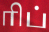
ரிப்